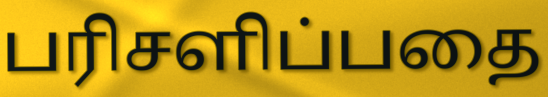
பரிசளிப்பதை